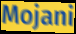
Mojani